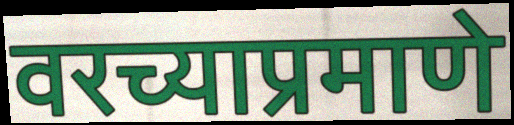
वरच्याप्रमाणे